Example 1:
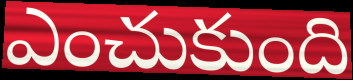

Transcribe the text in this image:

ఎంచుకుంది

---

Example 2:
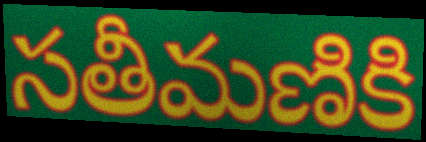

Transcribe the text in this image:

సతీమణికి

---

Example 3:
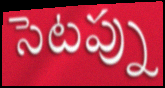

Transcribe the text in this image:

సెటప్ను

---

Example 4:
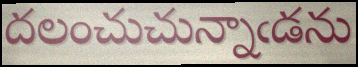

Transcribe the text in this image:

దలంచుచున్నాఁడను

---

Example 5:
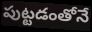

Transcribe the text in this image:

పుట్టడంతోనే